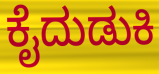
ಕೈದುಡುಕಿ